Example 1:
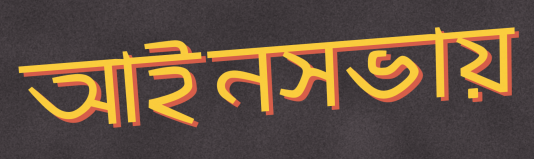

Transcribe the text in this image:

আইনসভায়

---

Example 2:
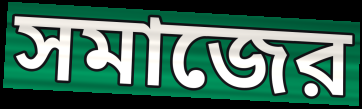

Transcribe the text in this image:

সমাজের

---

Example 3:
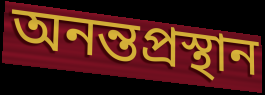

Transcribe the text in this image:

অনন্তপ্রস্থান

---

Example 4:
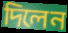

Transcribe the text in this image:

দিলেন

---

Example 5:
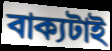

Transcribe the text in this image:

বাক্যটাই